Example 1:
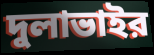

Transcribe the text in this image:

দুলাভাইর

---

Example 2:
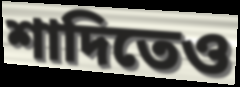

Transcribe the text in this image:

শাদিতেও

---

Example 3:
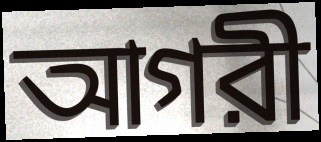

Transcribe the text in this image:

আগরী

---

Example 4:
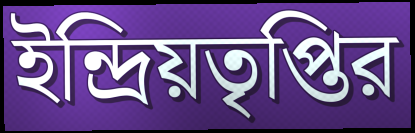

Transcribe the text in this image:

ইন্দ্রিয়তৃপ্তির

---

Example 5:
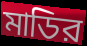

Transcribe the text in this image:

মাডির